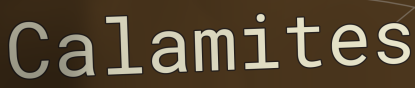
Calamites